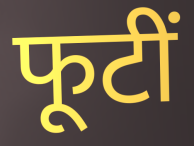
फूटीं